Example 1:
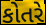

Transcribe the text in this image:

કોતરે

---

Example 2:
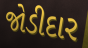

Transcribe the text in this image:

જોડીદાર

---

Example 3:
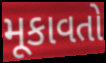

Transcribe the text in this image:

મૂકાવતો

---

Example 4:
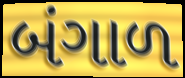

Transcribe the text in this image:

બંગાળ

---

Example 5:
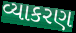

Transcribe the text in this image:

વ્યાકરણ